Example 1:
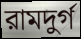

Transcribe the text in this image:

রামদুর্গ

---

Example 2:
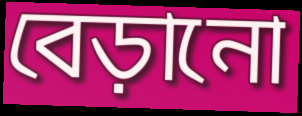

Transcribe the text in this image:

বেড়ানো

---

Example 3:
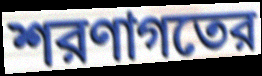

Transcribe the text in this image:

শরণাগতের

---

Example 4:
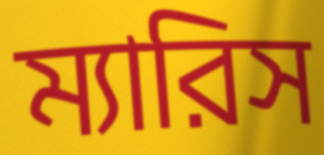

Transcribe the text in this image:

ম্যারিস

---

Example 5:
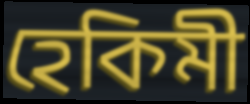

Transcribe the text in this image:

হেকিমী